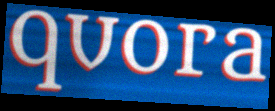
quora